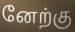
னேற்கு